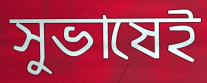
সুভাষেই